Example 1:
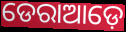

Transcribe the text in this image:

ଡେରାଆଡ଼େ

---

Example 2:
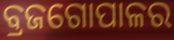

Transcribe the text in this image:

ବ୍ରଜଗୋପାଳର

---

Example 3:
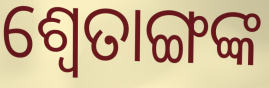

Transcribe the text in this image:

ଶ୍ବେତାଙ୍ଗଙ୍କ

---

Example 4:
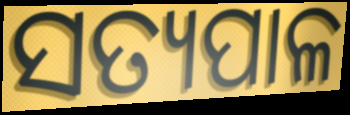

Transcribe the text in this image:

ସତ୍ୟପାଳ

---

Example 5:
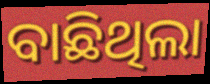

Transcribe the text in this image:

ବାଛିଥିଲା